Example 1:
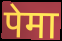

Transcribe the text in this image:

पेमा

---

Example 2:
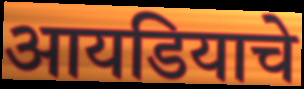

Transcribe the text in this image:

आयडियाचे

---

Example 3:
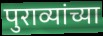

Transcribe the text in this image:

पुराव्यांच्या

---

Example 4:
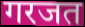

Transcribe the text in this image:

गरजत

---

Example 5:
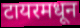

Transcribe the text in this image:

टायरमधून